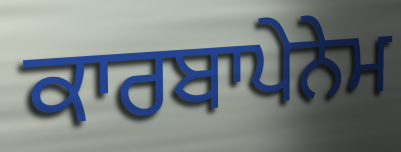
ਕਾਰਬਾਪੇਨੇਮ